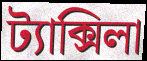
ট্যাক্সিলা